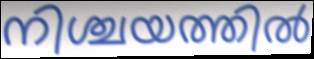
നിശ്ചയത്തിൽ